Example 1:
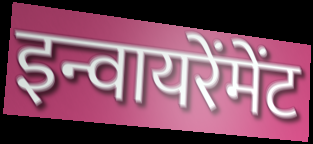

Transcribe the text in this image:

इन्वायरेंमेंट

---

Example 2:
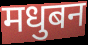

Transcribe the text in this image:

मधुबन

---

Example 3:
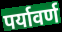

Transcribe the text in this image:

पर्यावर्ण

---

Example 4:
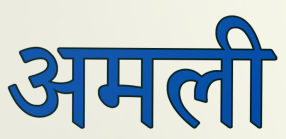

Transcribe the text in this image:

अमली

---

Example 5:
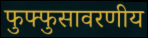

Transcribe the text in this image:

फुफ्फुसावरणीय